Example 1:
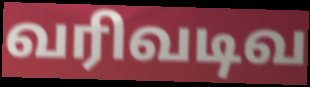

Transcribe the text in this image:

வரிவடிவ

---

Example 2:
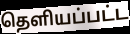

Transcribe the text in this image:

தெளியப்பட்ட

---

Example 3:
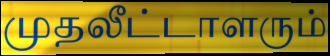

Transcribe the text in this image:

முதலீட்டாளரும்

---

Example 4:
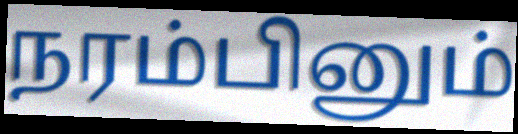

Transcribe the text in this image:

நரம்பினும்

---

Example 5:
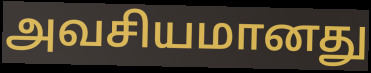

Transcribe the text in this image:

அவசியமானது